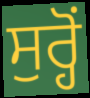
ਸੁਰ੍ਹੋਂ